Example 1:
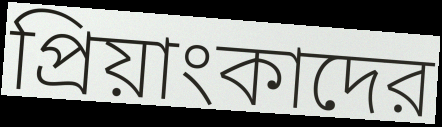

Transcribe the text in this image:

প্রিয়াংকাদের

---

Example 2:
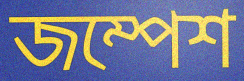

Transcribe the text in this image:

জম্পেশ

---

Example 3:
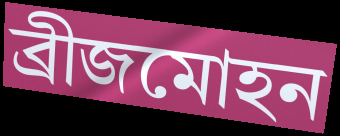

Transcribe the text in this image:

ব্রীজমোহন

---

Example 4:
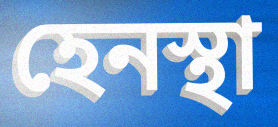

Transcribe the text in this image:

হেনস্থা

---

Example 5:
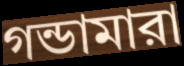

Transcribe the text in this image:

গন্ডামারা